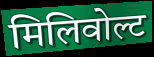
मिलिवोल्ट